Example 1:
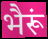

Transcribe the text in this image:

भैरूं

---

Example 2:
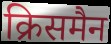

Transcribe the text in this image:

क्रिसमैन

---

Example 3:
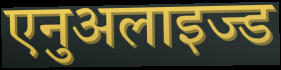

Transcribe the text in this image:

एनुअलाइज्ड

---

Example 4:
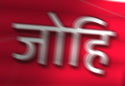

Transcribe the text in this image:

जोहि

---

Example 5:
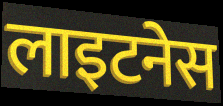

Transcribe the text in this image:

लाइटनेस